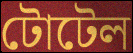
টোটেল